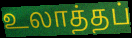
உலாத்தப்